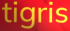
tigris